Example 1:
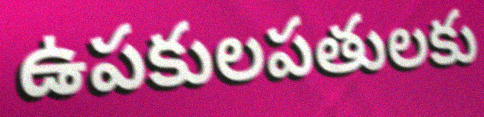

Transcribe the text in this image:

ఉపకులపతులకు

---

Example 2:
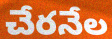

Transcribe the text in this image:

చేరనేల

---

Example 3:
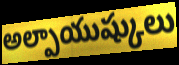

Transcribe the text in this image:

అల్పాయుష్కులు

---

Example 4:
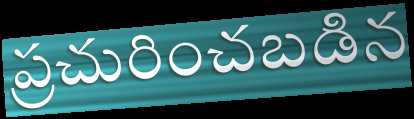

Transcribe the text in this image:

ప్రచురించబడిన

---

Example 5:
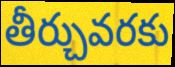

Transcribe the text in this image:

తీర్చువరకు